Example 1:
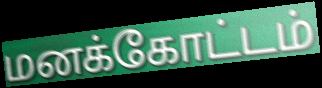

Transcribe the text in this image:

மனக்கோட்டம்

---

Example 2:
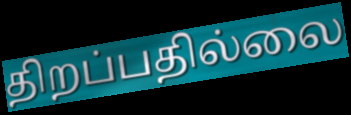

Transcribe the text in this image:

திறப்பதில்லை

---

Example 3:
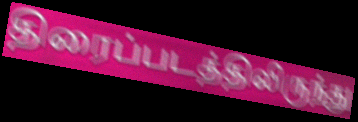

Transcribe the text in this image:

திரைப்படத்திலிருந்து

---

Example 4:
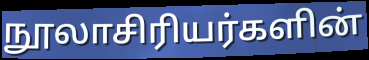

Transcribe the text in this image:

நூலாசிரியர்களின்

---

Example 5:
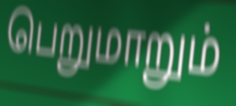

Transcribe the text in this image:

பெறுமாறும்